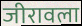
जीरावला